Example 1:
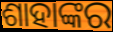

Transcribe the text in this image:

ଶାହାଙ୍କର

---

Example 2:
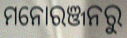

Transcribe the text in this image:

ମନୋରଞ୍ଜନରୁ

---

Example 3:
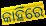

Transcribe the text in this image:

କାହିଁରେ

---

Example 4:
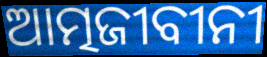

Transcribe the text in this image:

ଆତ୍ମଜୀବୀନୀ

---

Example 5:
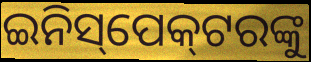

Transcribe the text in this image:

ଇନିସ୍‌ପେକ୍‍ଟରଙ୍କୁ